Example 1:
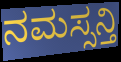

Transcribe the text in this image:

ನಮಸ್ಸನ್ತಿ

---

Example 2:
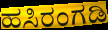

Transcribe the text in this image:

ಹಸಿರಂಗಡಿ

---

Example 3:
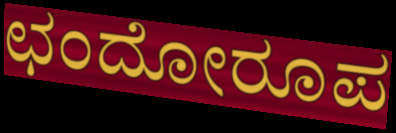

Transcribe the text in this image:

ಛಂದೋರೂಪ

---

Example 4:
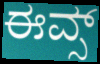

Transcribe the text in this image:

ಈವ್ಸ್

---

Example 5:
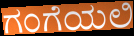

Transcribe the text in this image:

ಗಂಗೆಯಲಿ